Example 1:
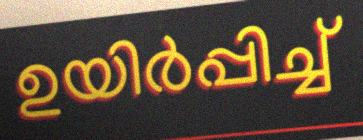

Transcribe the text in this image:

ഉയിർപ്പിച്ച്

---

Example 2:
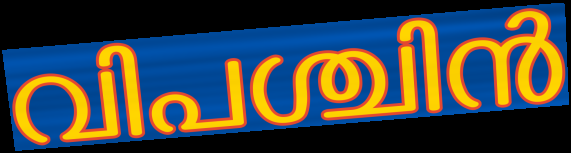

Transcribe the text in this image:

വിപശ്ചിൻ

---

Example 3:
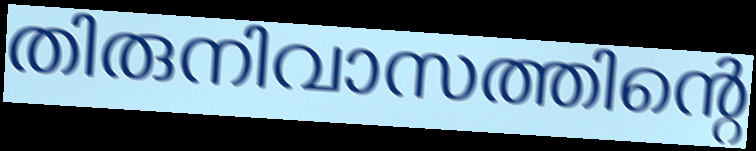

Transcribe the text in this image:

തിരുനിവാസത്തിന്റെ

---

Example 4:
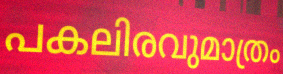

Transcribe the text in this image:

പകലിരവുമാത്രം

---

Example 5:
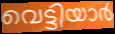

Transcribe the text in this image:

വെട്ടിയാർ